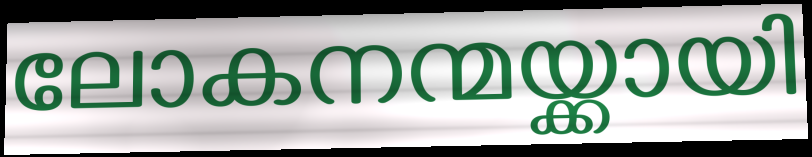
ലോകനന്മയ്ക്കായി